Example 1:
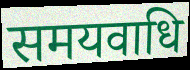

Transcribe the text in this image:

समयवाधि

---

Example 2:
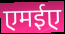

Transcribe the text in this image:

एमईए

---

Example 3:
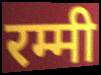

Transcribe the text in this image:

रम्मी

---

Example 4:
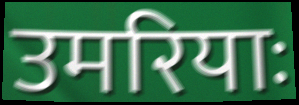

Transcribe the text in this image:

उमरियाः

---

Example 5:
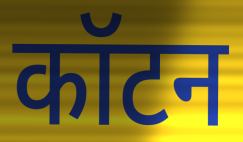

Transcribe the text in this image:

कॉटन